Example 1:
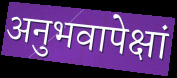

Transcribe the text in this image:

अनुभवापेक्षां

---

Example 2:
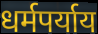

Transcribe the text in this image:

धर्मपर्याय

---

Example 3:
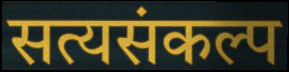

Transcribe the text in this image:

सत्यसंकल्प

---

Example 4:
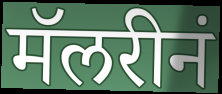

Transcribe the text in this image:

मॅलरीनं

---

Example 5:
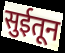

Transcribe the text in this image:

सुईतून